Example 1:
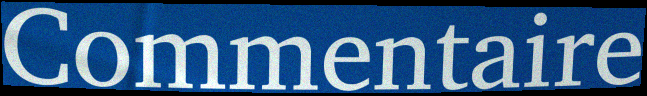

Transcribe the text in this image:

Commentaire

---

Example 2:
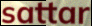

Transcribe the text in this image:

sattar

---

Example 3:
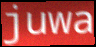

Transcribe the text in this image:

juwa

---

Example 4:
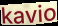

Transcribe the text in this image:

kavio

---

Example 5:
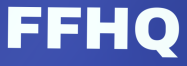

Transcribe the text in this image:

FFHQ